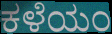
ಕಳೆಯಂ